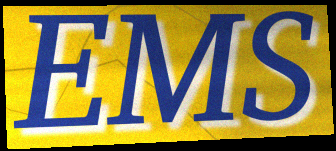
EMS